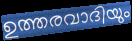
ഉത്തരവാദിയും